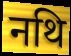
नथि